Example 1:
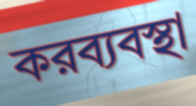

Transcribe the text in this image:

করব্যবস্থা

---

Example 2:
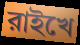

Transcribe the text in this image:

রাইখে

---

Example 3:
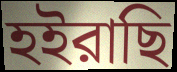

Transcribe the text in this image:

হইরাছি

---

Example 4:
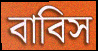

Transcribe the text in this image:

বাবিস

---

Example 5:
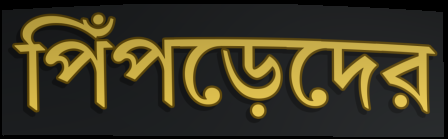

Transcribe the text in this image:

পিঁপড়েদের